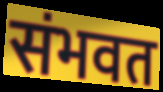
संभवत